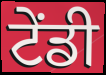
ਟੇਂਡੀ